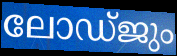
ലോഡ്ജും